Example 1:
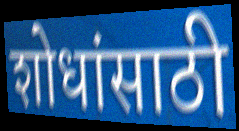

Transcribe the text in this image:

शोधांसाठी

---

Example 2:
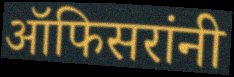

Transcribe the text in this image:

ऑफिसरांनी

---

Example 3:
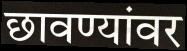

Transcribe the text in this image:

छावण्यांवर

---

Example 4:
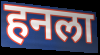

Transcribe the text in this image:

हनला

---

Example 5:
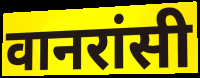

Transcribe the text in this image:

वानरांसी